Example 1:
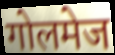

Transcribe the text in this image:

गोलमेज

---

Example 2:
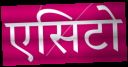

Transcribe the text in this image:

एसिटो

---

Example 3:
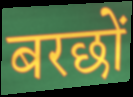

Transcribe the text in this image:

बरछों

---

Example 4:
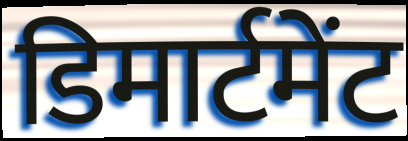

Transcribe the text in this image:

डिमार्टमेंट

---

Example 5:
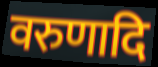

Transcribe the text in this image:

वरुणादि